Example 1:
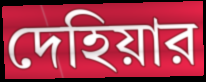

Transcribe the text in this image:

দেহিয়ার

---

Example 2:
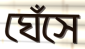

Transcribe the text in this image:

ঘেঁসে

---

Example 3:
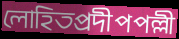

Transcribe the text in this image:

লোহিতপ্রদীপপল্লী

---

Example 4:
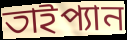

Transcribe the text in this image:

তাইপ্যান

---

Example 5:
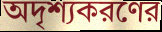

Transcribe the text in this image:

অদৃশ্যকরণের